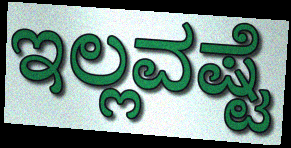
ಇಲ್ಲವಷ್ಟೆ